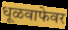
धूळवाफेवर